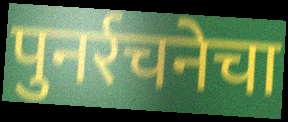
पुनर्रचनेचा